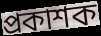
প্রকাশক